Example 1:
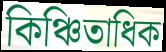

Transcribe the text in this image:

কিঞ্চিতাধিক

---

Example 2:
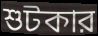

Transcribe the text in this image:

শুটকার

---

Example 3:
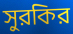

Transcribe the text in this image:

সুরকির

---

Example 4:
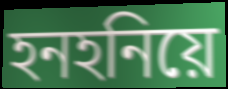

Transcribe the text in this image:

হনহনিয়ে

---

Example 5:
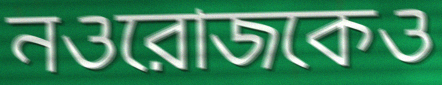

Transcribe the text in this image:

নওরোজকেও